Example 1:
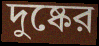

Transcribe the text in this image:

দুষ্কের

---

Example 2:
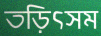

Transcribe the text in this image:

তড়িৎসম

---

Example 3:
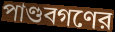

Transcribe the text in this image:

পাণ্ডবগণের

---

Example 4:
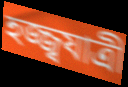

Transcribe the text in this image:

হজ্জ্বযাত্রী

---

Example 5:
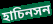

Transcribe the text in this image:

হাচিনসন